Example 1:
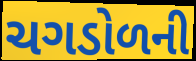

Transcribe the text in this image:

ચગડોળની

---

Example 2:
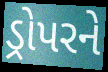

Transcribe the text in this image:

ડ્રોપરને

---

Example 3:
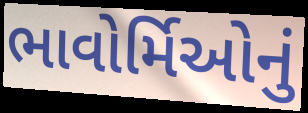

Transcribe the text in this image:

ભાવોર્મિઓનું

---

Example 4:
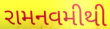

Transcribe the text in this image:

રામનવમીથી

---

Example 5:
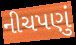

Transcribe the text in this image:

નીચપણું